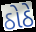
ઠોઠે